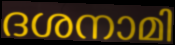
ദശനാമി